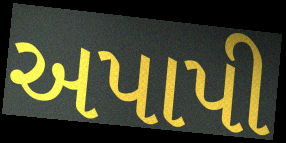
અપાપી